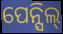
ପେନ୍ସିଲ୍